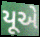
યૂએ